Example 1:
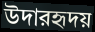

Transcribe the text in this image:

উদারহৃদয়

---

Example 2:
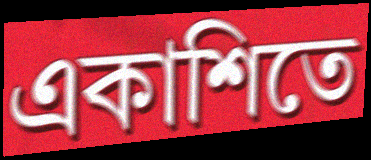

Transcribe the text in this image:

একাশিতে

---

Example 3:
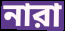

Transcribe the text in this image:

নারা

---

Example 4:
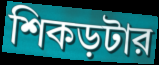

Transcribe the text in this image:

শিকড়টার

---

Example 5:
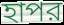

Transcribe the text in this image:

হাপর